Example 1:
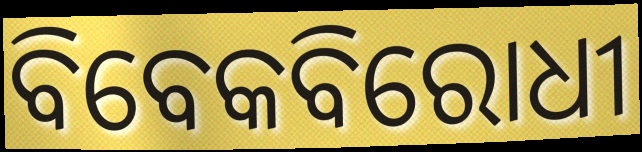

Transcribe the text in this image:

ବିବେକବିରୋଧୀ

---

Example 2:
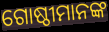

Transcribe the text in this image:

ଗୋଷ୍ଠୀମାନଙ୍କ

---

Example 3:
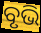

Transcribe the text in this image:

ବୃଭି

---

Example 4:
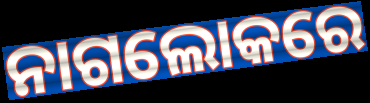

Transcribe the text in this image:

ନାଗଲୋକରେ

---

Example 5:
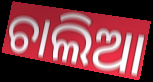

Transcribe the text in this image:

ଚାଲିଆ